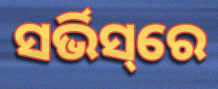
ସର୍ଭିସ୍‌ରେ